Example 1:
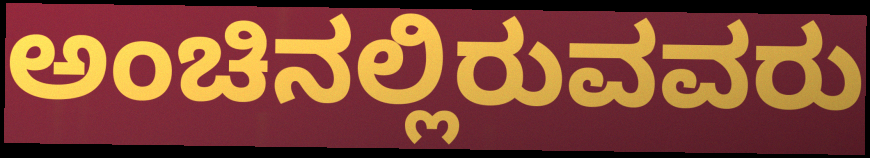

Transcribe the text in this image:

ಅಂಚಿನಲ್ಲಿರುವವರು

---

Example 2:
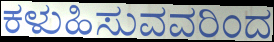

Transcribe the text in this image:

ಕಳುಹಿಸುವವರಿಂದ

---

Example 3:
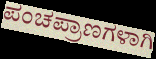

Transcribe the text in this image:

ಪಂಚಪ್ರಾಣಗಳಾಗಿ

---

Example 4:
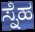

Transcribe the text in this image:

ಸ್ನೆಹ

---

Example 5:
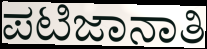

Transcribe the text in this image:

ಪಟಿಜಾನಾತಿ